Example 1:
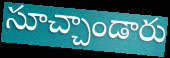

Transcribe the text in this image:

సూచ్చాండారు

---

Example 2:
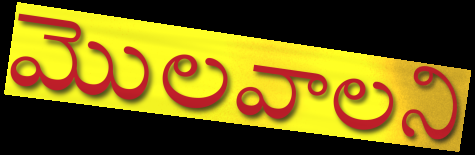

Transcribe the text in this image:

మొలవాలని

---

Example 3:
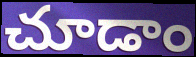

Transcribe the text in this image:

చూడాం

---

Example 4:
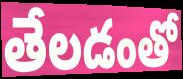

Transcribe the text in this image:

తేలడంతో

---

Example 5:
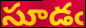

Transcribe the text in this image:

సూడఁ